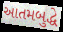
આતમબુદ્ધે